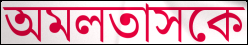
অমলতাসকে